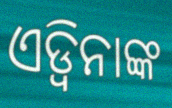
ଏଡ୍ୱିନାଙ୍କ